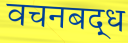
वचनबद्ध